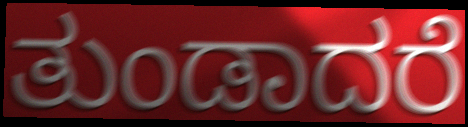
ತುಂಡಾದರೆ